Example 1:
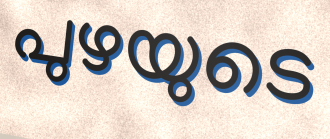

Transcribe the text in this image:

പുഴയുടെ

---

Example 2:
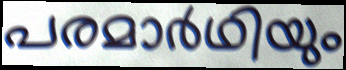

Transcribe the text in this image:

പരമാർഥിയും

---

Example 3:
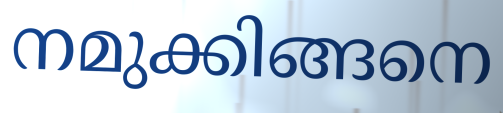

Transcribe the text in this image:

നമുക്കിങ്ങനെ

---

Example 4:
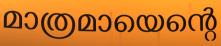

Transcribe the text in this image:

മാത്രമായെന്റെ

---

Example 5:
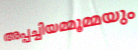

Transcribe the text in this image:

അപ്പച്ചിയമ്മൂമ്മയും